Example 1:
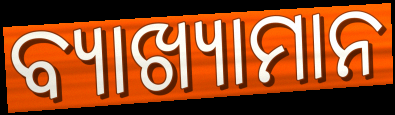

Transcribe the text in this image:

ବ୍ୟାଖ୍ୟାମାନ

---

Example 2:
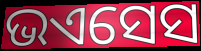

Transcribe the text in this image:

ଭଏସେସ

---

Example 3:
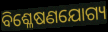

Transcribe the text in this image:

ବିଶ୍ଳେଷଣଯୋଗ୍ୟ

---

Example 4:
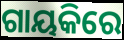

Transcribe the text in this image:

ଗାୟକିରେ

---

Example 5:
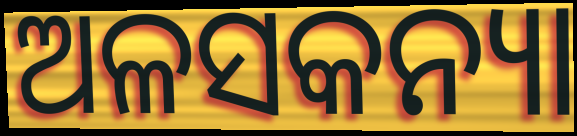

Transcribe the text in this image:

ଅଳସକନ୍ୟା